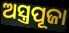
ଅସ୍ତ୍ରପୂଜା